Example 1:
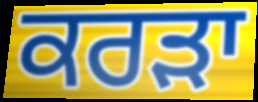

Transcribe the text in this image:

ਕਰੜਾ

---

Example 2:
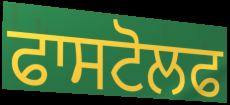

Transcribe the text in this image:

ਫਾਸਟੋਲਫ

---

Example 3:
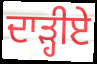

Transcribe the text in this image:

ਦਾੜ੍ਹੀਏ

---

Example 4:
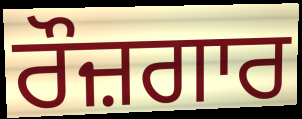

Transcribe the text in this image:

ਰੌਜ਼ਗਾਰ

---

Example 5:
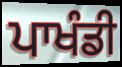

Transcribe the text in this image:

ਪਾਖੰਡੀ